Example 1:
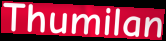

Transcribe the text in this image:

Thumilan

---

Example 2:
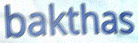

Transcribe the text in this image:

bakthas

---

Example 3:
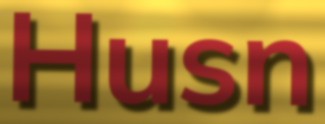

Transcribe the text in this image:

Husn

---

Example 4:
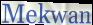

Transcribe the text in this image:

Mekwan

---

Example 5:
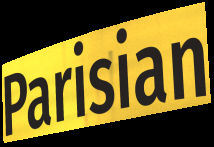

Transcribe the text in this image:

Parisian